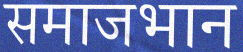
समाजभान